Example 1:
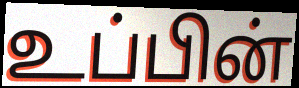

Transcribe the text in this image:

உப்பின்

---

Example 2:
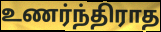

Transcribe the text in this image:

உணர்ந்திராத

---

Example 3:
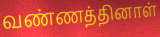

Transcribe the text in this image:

வண்ணத்தினாள்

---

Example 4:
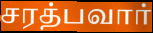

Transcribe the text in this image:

சரத்பவார்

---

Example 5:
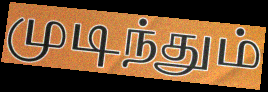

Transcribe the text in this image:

முடிந்தும்